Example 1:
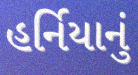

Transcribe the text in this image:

હર્નિયાનું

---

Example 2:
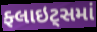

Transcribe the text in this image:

ફ્લાઇટ્સમાં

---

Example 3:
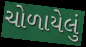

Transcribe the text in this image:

ચોળાયેલું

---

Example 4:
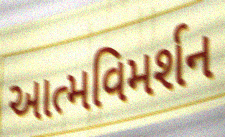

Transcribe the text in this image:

આત્મવિમર્શન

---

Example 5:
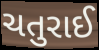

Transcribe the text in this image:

ચતુરાઈ